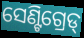
ସେଣ୍ଟିଗ୍ରେଡ୍